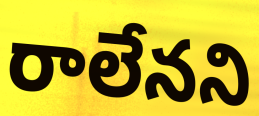
రాలేనని